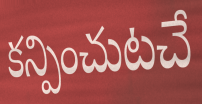
కన్పించుటచే